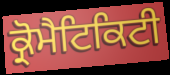
ਕ੍ਰੋਮੈਟਿਕਿਟੀ